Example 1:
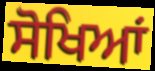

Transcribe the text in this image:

ਸੋਖਿਆਂ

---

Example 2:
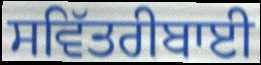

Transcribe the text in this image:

ਸਵਿੱਤਰੀਬਾਈ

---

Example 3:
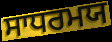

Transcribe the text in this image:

ਸਾਧਰਮਯ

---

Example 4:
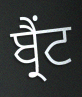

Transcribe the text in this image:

ਬ੍ਰੈਂਟ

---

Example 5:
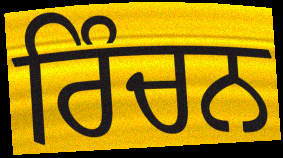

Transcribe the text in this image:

ਰਿੰਚਨ